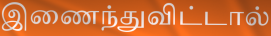
இணைந்துவிட்டால்